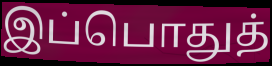
இப்பொதுத்